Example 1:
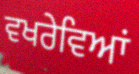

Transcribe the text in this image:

ਵਖਰੇਵਿਆਂ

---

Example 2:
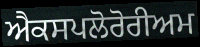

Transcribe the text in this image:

ਐਕਸਪਲੋਰੋਰੀਅਮ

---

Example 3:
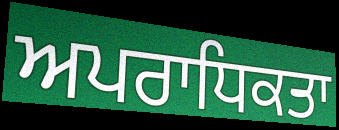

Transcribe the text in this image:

ਅਪਰਾਧਿਕਤਾ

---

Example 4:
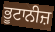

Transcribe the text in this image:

ਭੂਟਾਨੀਜ਼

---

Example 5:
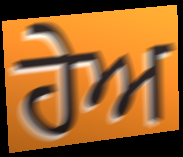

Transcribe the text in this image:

ਹੇਅ